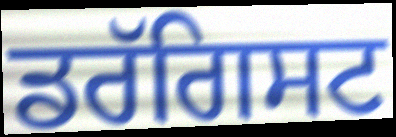
ਡਰੱਗਿਸਟ